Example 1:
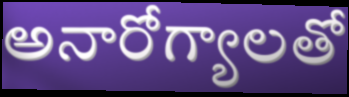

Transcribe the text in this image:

అనారోగ్యాలతో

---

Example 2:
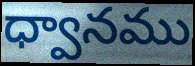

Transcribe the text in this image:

ధ్వానము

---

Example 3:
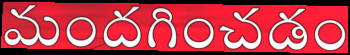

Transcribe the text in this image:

మందగించడం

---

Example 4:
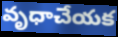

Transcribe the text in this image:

వృధాచేయక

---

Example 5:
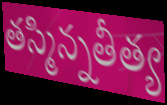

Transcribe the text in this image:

తస్మిన్నతీత్య